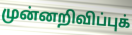
முன்னறிவிப்புக்